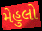
મેહુલો